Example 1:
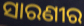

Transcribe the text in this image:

ସାରଣୀର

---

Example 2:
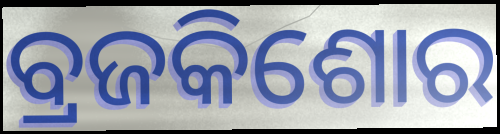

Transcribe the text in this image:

ବ୍ରଜକିଶୋର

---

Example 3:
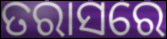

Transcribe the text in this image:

ତରାସରେ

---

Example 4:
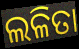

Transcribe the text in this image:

ଲଳିତା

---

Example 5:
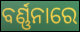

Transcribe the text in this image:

ବର୍ଣ୍ଣନାରେ